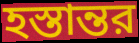
হস্তান্তর